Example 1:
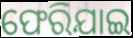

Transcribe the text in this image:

ଫେରିଯାଇ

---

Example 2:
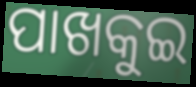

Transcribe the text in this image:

ପାଖକୁଇ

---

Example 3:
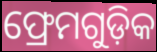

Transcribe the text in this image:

ଫ୍ରେମଗୁଡ଼ିକ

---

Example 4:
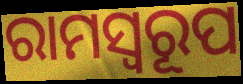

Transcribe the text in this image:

ରାମସ୍ୱରୂପ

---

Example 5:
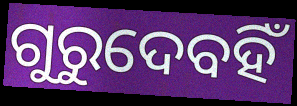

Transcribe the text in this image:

ଗୁରୁଦେବହିଁ